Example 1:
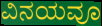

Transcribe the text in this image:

ವಿನಯವೂ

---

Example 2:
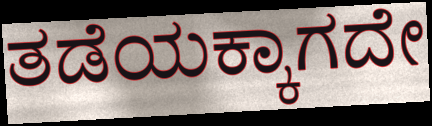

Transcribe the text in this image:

ತಡೆಯಕ್ಕಾಗದೇ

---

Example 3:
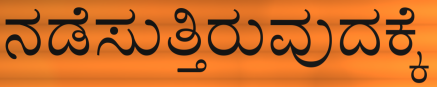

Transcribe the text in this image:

ನಡೆಸುತ್ತಿರುವುದಕ್ಕೆ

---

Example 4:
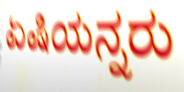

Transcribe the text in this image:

ಏಷಿಯನ್ನರು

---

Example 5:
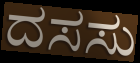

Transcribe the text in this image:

ದಸಸು